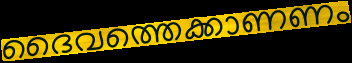
ദൈവത്തെക്കാണണം